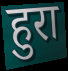
हुरा